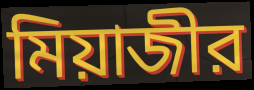
মিয়াজীর